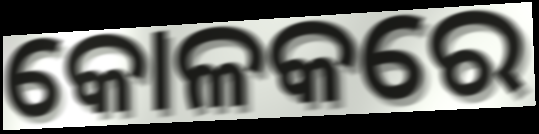
କୋଳକରେ